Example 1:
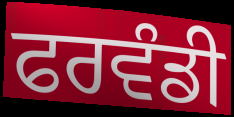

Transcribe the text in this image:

ਫਰਵੰਡੀ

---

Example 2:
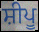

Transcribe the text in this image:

ਸ਼ੀਪੂ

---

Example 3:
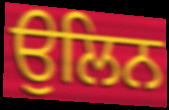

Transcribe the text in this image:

ਉਲਿਨ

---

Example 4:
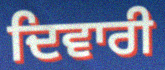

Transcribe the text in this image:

ਦਿਵਾਰੀ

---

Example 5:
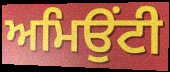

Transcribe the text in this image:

ਅਮਿਉਂਟੀ